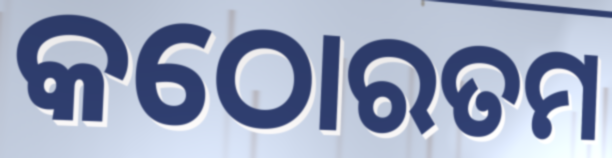
କଠୋରତମ